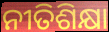
ନୀତିଶିକ୍ଷା